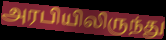
அரபியிலிருந்து